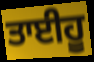
ਤਾਈਹੂ